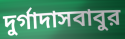
দুর্গাদাসবাবুর